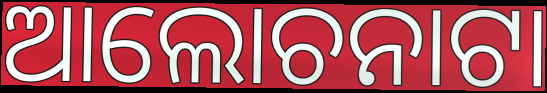
ଆଲୋଚନାଟା